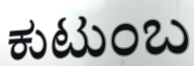
ಕುಟುಂಬ